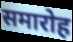
समारोह